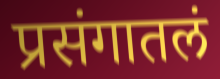
प्रसंगातलं